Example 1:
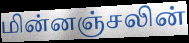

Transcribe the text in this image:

மின்னஞ்சலின்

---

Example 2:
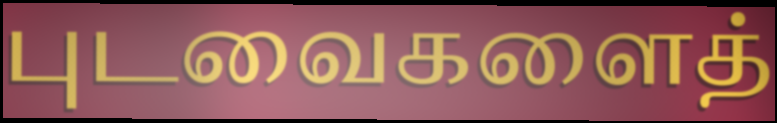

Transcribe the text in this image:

புடவைகளைத்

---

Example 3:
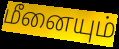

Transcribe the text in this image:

மீனையும்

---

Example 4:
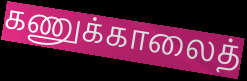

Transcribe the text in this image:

கணுக்காலைத்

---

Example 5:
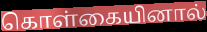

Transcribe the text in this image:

கொள்கையினால்